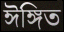
ঈঙ্গিত